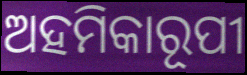
ଅହମିକାରୂପୀ